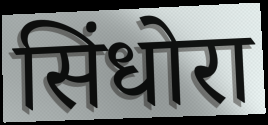
सिंधोरा